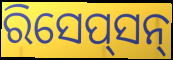
ରିସେପ୍‍ସନ୍